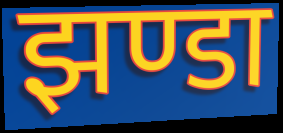
झण्डा